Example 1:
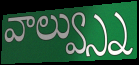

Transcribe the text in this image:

వాల్వ్స్ను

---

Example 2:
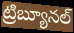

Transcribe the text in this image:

ట్రిబ్యూనల్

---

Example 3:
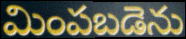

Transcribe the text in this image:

మింపబడెను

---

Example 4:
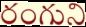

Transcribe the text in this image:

రంగుని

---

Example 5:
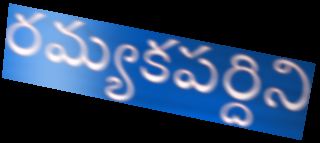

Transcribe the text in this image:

రమ్యకపర్దిని